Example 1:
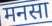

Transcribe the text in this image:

मनसा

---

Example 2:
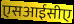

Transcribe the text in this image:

एसआईसीए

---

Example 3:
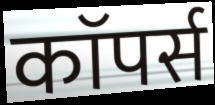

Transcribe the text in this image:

कॉपर्स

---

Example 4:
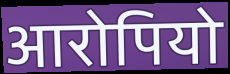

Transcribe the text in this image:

आरोपियो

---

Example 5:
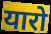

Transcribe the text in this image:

यारो